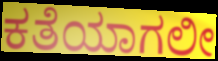
ಕತೆಯಾಗಲೀ